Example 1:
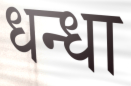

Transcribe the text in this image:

धन्धा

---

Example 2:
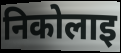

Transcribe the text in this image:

निकोलाइ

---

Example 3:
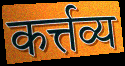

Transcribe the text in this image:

कर्त्तव्य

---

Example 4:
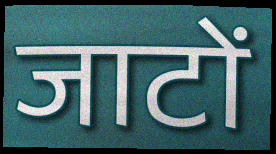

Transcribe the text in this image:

जाटों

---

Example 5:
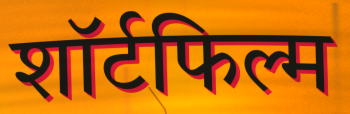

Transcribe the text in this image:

शॉर्टफिल्म